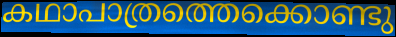
കഥാപാത്രത്തെക്കൊണ്ടു